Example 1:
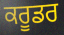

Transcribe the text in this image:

ਕਰੂਡਰ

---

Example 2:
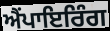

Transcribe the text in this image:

ਐਂਪਾਇਰਿੰਗ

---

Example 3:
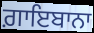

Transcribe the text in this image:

ਗ਼ਾਇਬਾਨਾ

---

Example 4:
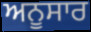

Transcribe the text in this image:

ਅਨੂਸਾਰ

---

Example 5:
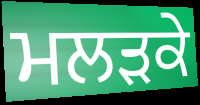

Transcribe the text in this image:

ਮਲੜਕੇ